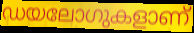
ഡയലോഗുകളാണ്